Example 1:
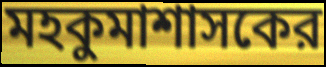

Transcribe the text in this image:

মহকুমাশাসকের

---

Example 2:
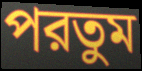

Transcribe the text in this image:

পরতুম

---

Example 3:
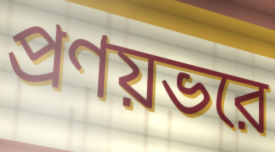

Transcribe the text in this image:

প্রণয়ভরে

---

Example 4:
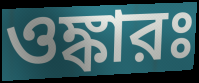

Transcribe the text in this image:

ওঙ্কারঃ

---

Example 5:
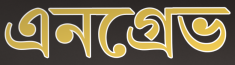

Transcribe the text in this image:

এনগ্রেভ